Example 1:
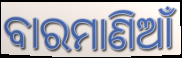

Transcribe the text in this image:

ବାରମାଣିଆଁ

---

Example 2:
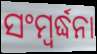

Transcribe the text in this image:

ସଂମ୍ବର୍ଦ୍ଧନା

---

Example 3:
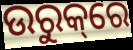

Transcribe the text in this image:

ଉରୁକ୍‌ରେ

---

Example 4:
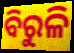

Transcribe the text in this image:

ବିରୁଳି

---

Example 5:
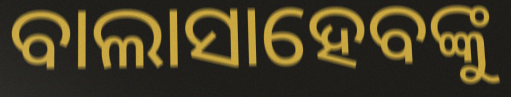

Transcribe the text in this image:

ବାଲାସାହେବଙ୍କୁ